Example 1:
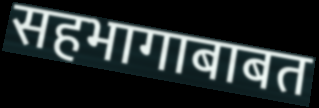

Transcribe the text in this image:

सहभागाबाबत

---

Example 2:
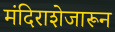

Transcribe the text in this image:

मंदिराशेजारून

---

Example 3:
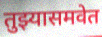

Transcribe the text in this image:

तुझ्यासमवेत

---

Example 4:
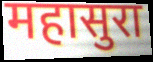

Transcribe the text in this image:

महासुरा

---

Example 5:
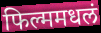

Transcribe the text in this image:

फिल्ममधलं